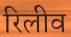
रिलीव